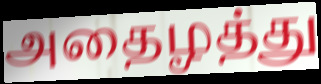
அதைழத்து